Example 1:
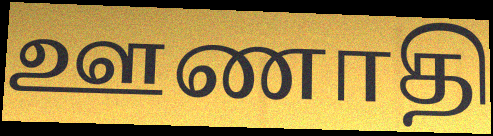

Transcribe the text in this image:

ஊணாதி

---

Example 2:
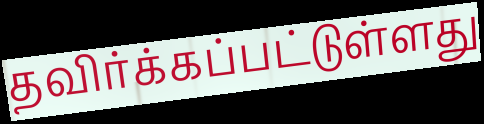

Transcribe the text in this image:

தவிர்க்கப்பட்டுள்ளது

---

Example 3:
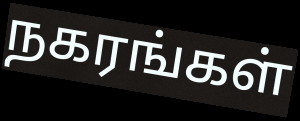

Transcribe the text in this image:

நகரங்கள்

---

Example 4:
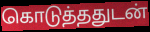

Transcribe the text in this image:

கொடுத்ததுடன்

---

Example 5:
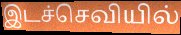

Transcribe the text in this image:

இடச்செவியில்